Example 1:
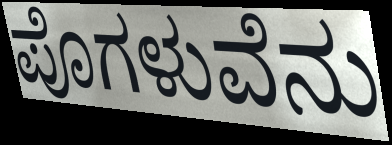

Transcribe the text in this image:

ಪೊಗಳುವೆನು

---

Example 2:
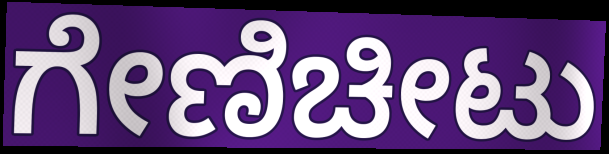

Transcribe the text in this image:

ಗೇಣಿಚೀಟು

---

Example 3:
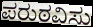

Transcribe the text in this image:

ಪರುಠವಿಸು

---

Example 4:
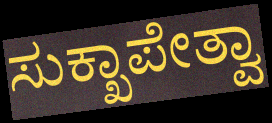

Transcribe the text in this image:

ಸುಕ್ಖಾಪೇತ್ವಾ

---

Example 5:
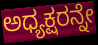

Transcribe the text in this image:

ಅಧ್ಯಕ್ಷರನ್ನೇ